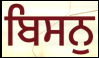
ਬਿਸਨੁ